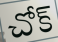
చోక్